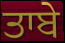
ਤਾਬੇ